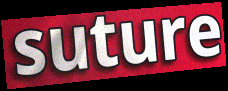
suture